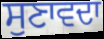
ਸੁਣਾਵਦਾ